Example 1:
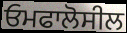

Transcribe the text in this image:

ਓਮਫਾਲੋਸੀਲ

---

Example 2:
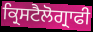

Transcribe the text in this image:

ਕ੍ਰਿਸਟੈਲੋਗ੍ਰਾਫੀ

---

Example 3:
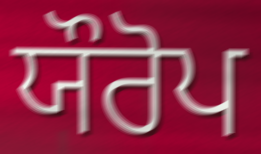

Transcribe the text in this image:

ਯੌਰੋਪ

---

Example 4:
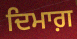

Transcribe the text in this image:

ਦਿਮਾਗ਼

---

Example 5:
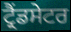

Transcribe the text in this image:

ਟ੍ਰੈਂਡਸੇਟਰ